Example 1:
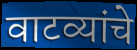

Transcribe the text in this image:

वाटव्यांचे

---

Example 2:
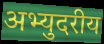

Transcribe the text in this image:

अभ्युदरीय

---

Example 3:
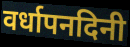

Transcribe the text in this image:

वर्धापनदिनी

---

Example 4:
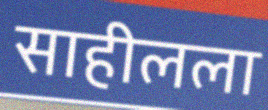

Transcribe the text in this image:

साहीलला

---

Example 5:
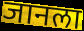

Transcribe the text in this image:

जानला